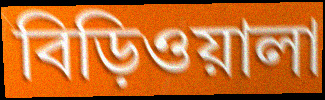
বিড়িওয়ালা